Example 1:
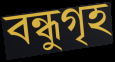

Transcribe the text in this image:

বন্ধুগৃহ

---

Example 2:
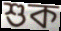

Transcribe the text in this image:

শুক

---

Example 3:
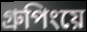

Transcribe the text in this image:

গ্রুপিংয়ে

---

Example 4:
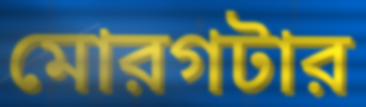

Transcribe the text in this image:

মোরগটার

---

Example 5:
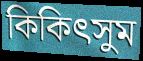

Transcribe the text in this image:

কিকিৎসুম